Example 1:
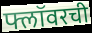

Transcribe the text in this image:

फ्लॉवरची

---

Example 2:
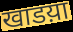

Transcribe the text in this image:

खाडय़ा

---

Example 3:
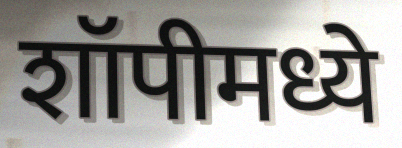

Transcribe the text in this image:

शॉपीमध्ये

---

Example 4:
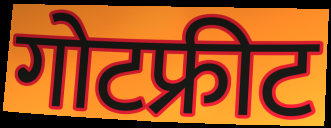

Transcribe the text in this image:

गोटफ्रीट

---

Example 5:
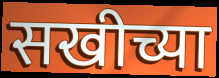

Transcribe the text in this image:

सखीच्या